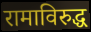
रामाविरुद्ध